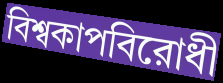
বিশ্বকাপবিরোধী